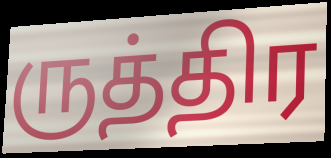
ருத்திர